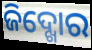
ଜିଦ୍ଖୋର